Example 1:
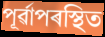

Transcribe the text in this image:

পূৰ্ৱাপৰস্থিত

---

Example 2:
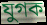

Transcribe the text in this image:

যুগক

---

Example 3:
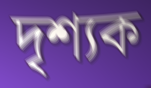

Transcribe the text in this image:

দৃশ্যক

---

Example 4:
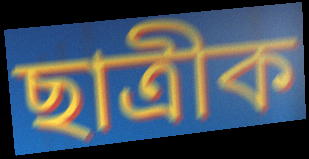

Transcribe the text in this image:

ছাত্ৰীক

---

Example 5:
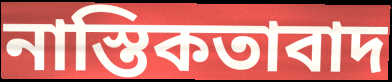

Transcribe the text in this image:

নাস্তিকতাবাদ